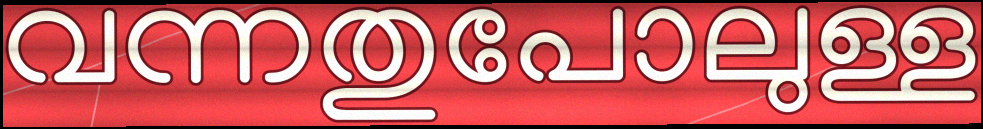
വന്നതുപോലുള്ള